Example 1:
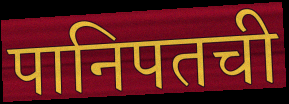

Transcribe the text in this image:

पानिपतची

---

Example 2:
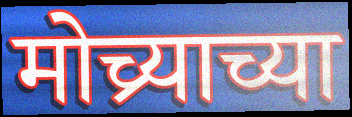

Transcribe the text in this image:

मोच्र्याच्या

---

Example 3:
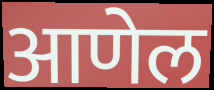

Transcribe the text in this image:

आणेल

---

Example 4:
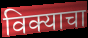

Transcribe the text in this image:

विक्याचा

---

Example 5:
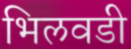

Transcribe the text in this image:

भिलवडी